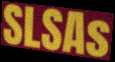
SLSAs